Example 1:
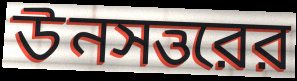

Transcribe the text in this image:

উনসত্তরের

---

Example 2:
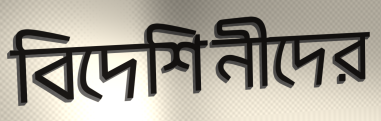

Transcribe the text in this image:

বিদেশিনীদের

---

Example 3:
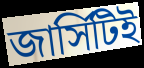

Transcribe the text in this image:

জার্সিটিই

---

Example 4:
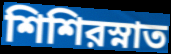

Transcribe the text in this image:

শিশিরস্নাত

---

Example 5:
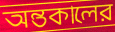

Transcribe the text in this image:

অন্তকালের